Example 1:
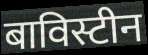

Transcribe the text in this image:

बाविस्टीन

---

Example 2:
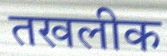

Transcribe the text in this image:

तखलीक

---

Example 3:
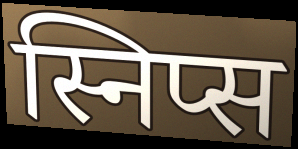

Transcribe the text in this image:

स्निप्स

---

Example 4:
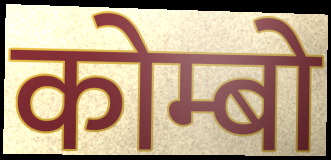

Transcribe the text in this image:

कोम्बो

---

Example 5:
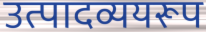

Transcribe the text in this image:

उत्पादव्ययरूप